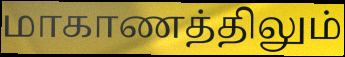
மாகாணத்திலும்